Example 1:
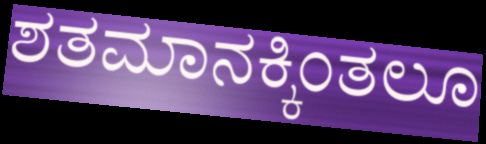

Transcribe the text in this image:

ಶತಮಾನಕ್ಕಿಂತಲೂ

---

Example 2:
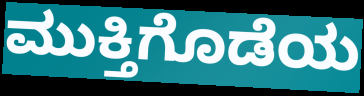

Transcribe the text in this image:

ಮುಕ್ತಿಗೊಡೆಯ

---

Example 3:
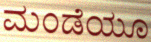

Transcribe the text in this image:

ಮಂಡೆಯೂ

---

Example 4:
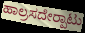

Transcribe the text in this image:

ಹಾಲ್ರಸದೇರ‍್ಪಾಟು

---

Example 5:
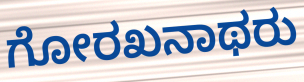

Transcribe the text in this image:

ಗೋರಖನಾಥರು